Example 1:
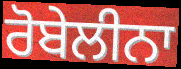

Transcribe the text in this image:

ਰੋਬੇਲੀਨਾ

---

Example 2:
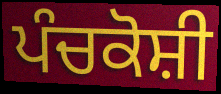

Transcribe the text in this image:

ਪੰਚਕੋਸ਼ੀ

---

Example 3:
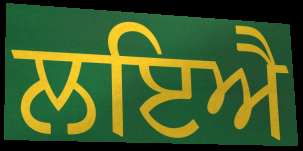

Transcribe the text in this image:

ਲਇਐ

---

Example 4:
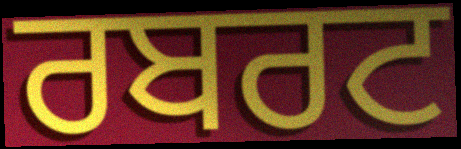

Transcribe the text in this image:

ਰਬਰਟ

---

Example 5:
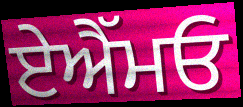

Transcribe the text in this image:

ਏਐੱਮਓ